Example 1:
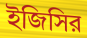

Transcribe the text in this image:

ইজিসির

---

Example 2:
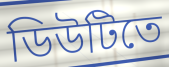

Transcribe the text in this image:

ডিউটিতে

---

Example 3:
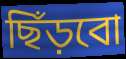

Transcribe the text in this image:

ছিঁড়বো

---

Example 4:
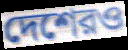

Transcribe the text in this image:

দেশেরও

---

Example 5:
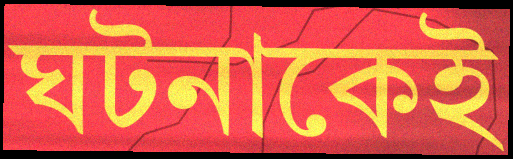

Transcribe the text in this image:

ঘটনাকেই